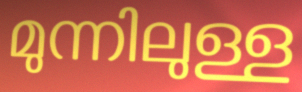
മുന്നിലുള്ള